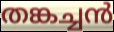
തങ്കച്ചൻ